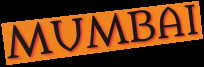
MUMBAI